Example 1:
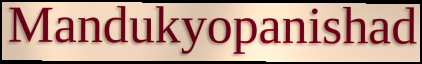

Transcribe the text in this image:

Mandukyopanishad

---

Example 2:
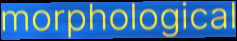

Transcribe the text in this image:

morphological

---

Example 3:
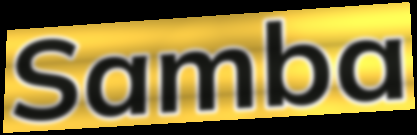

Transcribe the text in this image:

Samba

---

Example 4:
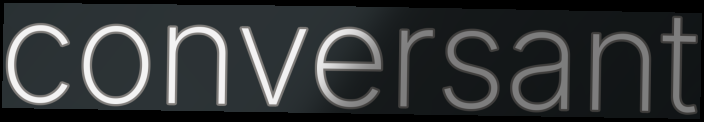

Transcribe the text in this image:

conversant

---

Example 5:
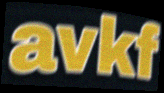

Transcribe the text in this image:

avkf